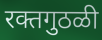
रक्तगुठळी